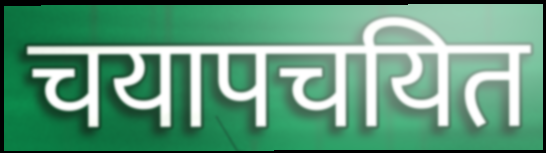
चयापचयित